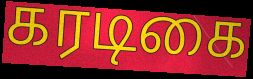
கரடிகை